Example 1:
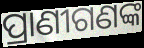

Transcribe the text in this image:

ପ୍ରାଣୀଗଣଙ୍କ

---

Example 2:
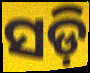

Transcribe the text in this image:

ସଡ଼ି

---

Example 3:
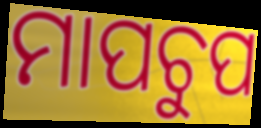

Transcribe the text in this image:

ମାପଚୁପ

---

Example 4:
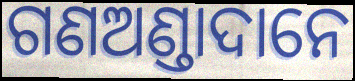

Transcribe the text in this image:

ଗଣଅଣ୍ଡାଦାନେ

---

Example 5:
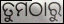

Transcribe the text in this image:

ତୁମଠାରୁ